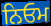
ਨਿਓਮ